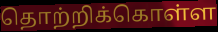
தொற்றிக்கொள்ள